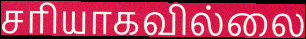
சரியாகவில்லை